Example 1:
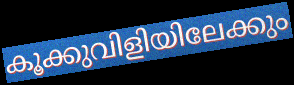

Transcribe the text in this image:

കൂക്കുവിളിയിലേക്കും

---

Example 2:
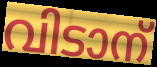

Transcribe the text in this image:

വിടാന്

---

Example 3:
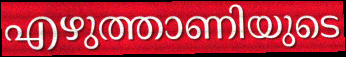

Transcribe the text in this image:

എഴുത്താണിയുടെ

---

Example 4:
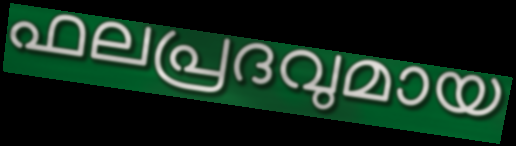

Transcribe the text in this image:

ഫലപ്രദവുമായ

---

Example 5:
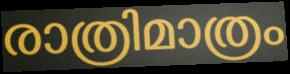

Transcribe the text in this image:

രാത്രിമാത്രം